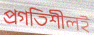
প্রগতিশীলই